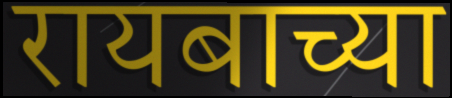
रायबाच्या